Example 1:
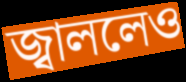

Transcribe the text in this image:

জ্বাললেও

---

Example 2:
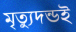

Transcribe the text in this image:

মৃত্যুদন্ডই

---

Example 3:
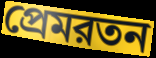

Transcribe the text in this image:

প্রেমরতন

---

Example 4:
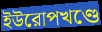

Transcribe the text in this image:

ইউরোপখণ্ডে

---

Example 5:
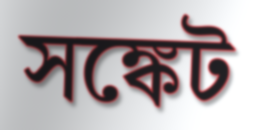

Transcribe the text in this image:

সঙ্কেট